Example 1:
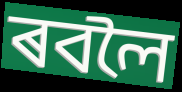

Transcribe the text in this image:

ৰবলৈ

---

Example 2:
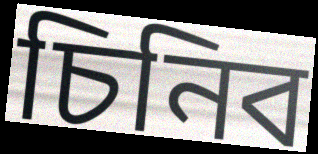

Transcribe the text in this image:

চিনিব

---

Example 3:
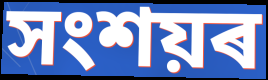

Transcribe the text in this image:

সংশয়ৰ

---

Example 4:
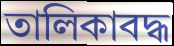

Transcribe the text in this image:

তালিকাবদ্ধ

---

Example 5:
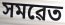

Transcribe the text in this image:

সমৱেত